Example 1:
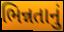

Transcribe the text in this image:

ભિન્નતાનું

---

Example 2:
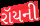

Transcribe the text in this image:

રૉયની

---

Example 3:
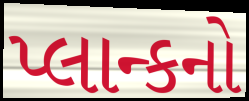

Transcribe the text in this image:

પ્લાન્કનો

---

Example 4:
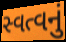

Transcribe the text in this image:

સ્વત્વનું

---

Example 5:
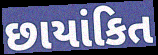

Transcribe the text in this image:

છાયાંકિત